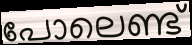
പോലെണ്ട്